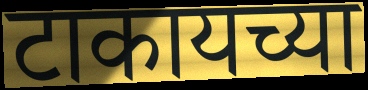
टाकायच्या